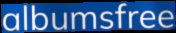
albumsfree